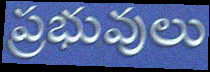
ప్రభువులు